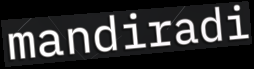
mandiradi